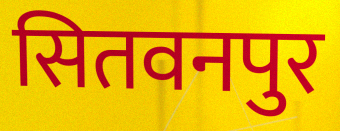
सितवनपुर